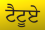
ਟੈਟੂਏ